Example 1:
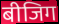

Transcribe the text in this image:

बीजिग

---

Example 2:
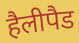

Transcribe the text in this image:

हैलीपैड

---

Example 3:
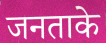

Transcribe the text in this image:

जनताके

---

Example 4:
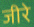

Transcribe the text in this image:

जीरे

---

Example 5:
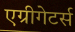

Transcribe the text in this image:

एग्रीगेटर्स